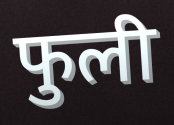
फुली